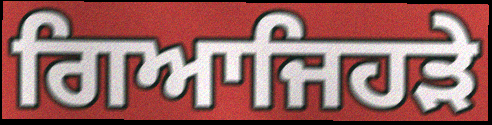
ਗਿਆਜਿਹੜੇ